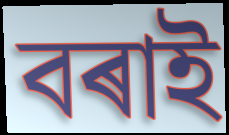
বৰাই